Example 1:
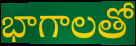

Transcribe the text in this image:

భాగాలతో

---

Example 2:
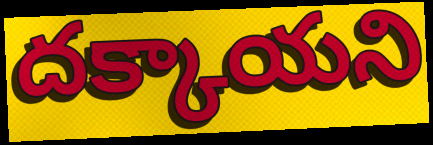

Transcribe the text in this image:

దక్కాయని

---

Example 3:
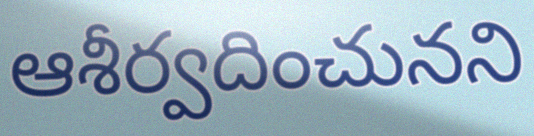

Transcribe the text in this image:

ఆశీర్వదించునని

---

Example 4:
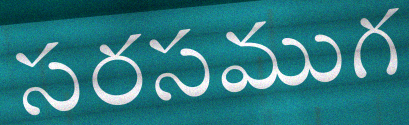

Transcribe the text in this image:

సరసముగ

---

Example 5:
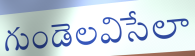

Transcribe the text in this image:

గుండెలవిసేలా